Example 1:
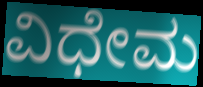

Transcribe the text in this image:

ವಿಧೇಮ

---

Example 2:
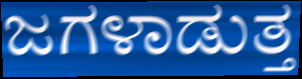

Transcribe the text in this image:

ಜಗಳಾಡುತ್ತ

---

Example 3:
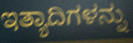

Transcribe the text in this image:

ಇತ್ಯಾದಿಗಳನ್ನು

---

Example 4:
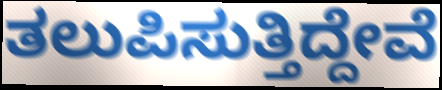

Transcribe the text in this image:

ತಲುಪಿಸುತ್ತಿದ್ದೇವೆ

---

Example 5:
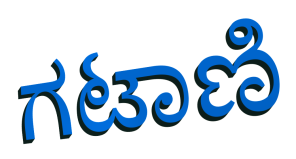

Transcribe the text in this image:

ಗಟಾಣಿ